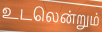
உடலென்றும்